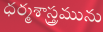
ధర్మశాస్త్రమును